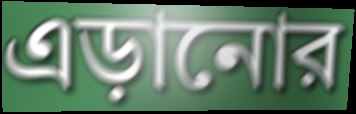
এড়ানোর